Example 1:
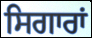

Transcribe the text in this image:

ਸਿਗਾਰਾਂ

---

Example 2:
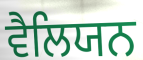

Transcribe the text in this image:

ਵੈਲਿਯਨ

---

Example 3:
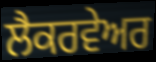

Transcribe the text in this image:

ਲੈਕਰਵੇਅਰ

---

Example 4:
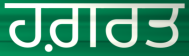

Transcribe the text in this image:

ਹਗ਼ਰਤ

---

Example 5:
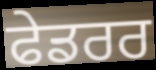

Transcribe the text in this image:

ਫੇਡਰਰ